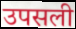
उपसली